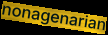
nonagenarian